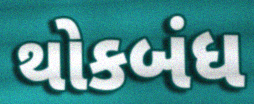
થોકબંધ